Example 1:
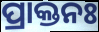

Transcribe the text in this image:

ପ୍ରାକ୍ତନଃ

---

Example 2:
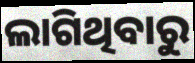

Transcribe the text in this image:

ଲାଗିଥିବାରୁ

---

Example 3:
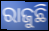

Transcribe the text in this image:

ରାଜୁଛି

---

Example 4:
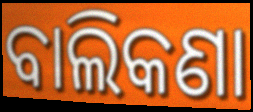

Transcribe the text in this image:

ବାଲିକଣା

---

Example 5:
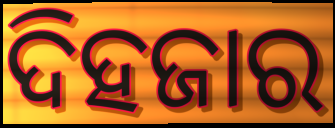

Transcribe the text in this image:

ଦିହଜାର